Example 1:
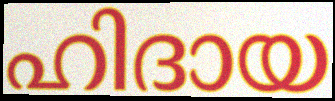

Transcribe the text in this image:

ഹിദായ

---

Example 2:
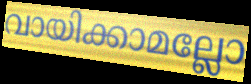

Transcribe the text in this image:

വായിക്കാമല്ലോ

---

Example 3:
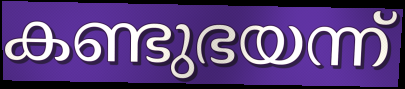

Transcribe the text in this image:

കണ്ടുഭയന്ന്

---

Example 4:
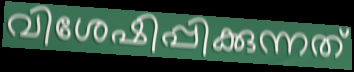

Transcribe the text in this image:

വിശേഷിപ്പിക്കുന്നത്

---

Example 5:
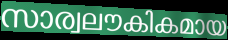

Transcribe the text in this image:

സാര്വലൗകികമായ